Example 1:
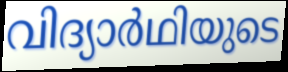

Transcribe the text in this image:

വിദ്യാർഥിയുടെ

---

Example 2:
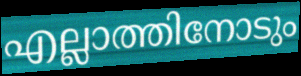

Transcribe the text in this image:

എല്ലാത്തിനോടും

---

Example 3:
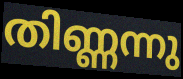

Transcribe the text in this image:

തിണ്ണന്നു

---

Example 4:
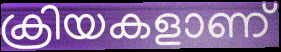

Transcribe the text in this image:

ക്രിയകളാണ്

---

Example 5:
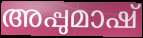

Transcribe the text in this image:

അപ്പുമാഷ്